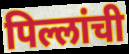
पिल्लांची